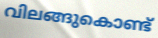
വിലങ്ങുകൊണ്ട്